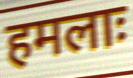
हमलाः